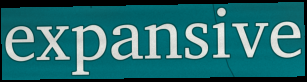
expansive